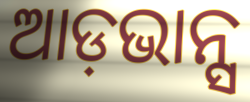
ଆଡ଼ଭାନ୍ସ